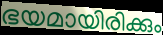
ഭയമായിരിക്കും